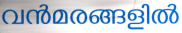
വൻമരങ്ങളിൽ